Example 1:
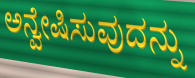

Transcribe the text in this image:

ಅನ್ವೇಷಿಸುವುದನ್ನು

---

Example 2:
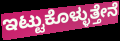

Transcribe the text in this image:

ಇಟ್ಟುಕೊಳ್ಳುತ್ತೇನೆ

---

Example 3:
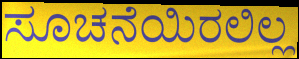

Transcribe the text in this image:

ಸೂಚನೆಯಿರಲಿಲ್ಲ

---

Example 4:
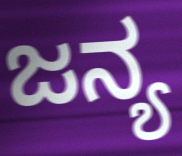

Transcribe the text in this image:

ಜನ್ಯ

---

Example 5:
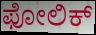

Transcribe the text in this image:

ಫೋಲಿಕ್